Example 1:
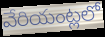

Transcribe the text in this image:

వేరియంట్లలో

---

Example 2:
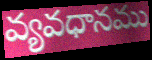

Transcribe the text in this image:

వ్యవధానము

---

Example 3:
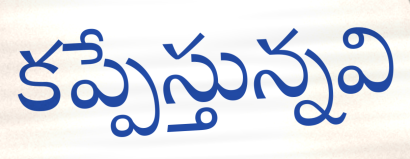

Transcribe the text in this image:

కప్పేస్తున్నవి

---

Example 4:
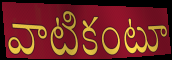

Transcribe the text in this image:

వాటికంటూ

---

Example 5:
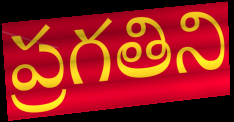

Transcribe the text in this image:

ప్రగతిని